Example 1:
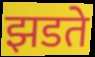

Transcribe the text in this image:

झडते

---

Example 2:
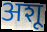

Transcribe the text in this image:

अश्रू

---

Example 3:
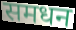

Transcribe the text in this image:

समधन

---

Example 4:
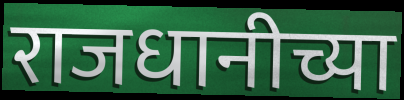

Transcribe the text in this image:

राजधानीच्या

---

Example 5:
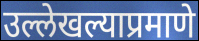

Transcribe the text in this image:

उल्लेखल्याप्रमाणे